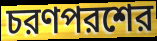
চরণপরশের